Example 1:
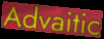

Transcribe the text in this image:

Advaitic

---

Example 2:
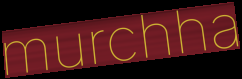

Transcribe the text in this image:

murchha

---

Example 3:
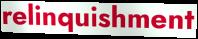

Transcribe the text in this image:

relinquishment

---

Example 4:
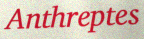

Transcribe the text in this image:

Anthreptes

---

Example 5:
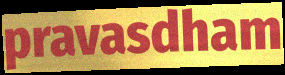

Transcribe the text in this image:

pravasdham